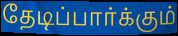
தேடிப்பார்க்கும்